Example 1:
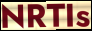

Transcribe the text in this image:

NRTIs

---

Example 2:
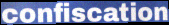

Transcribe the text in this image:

confiscation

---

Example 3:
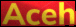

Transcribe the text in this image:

Aceh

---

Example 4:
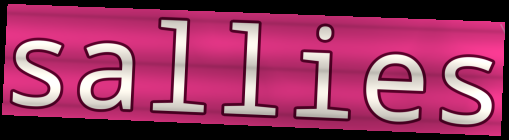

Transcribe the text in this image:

sallies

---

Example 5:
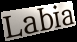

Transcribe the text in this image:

Labia